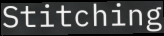
Stitching